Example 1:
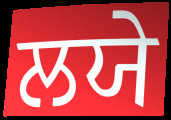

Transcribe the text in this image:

ਲਯੇ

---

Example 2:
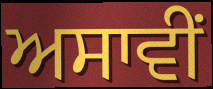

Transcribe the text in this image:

ਅਸਾਵੀਂ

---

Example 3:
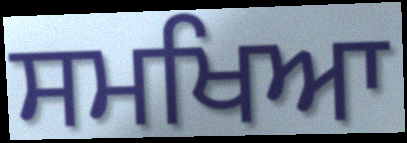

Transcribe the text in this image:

ਸਮਖਿਆ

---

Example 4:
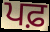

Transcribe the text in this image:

ਪਫ਼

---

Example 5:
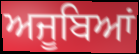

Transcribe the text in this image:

ਅਜੂਬਿਆਂ